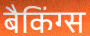
बैकिंग्स